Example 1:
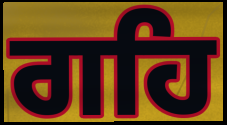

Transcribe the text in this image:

ਗਹਿ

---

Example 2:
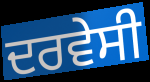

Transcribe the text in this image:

ਦਰਵੇਸੀ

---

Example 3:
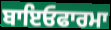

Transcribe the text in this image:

ਬਾਇਓਫਾਰਮਾ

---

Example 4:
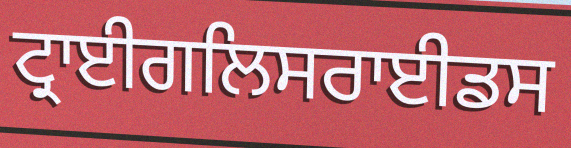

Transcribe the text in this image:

ਟ੍ਰਾਈਗਲਿਸਰਾਈਡਸ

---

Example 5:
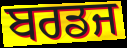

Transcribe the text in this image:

ਬਰਡਜ